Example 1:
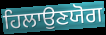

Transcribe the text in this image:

ਹਿਲਾਉਣਯੋਗ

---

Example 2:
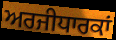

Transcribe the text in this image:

ਅਰਜੀਧਾਰਕਾਂ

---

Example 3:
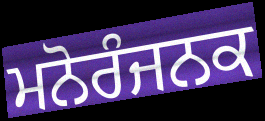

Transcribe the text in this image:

ਮਨੋਰੰਜਨਕ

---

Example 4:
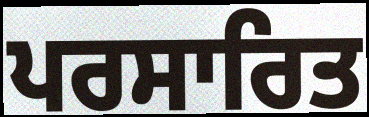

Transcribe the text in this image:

ਪਰਸਾਰਿਤ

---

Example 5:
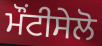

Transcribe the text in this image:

ਮੌਂਟੀਸੇਲੋ